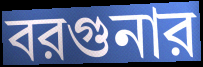
বরগুনার